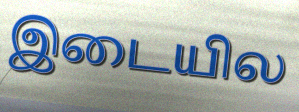
இடையில